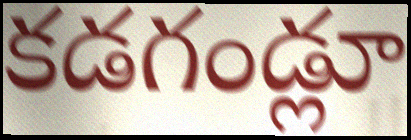
కడగండ్లూ